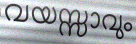
വയസ്സാവും